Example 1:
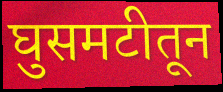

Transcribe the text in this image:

घुसमटीतून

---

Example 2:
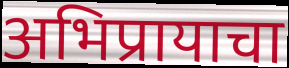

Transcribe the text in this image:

अभिप्रायाचा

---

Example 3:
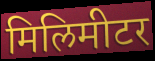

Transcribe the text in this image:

मिलिमीटर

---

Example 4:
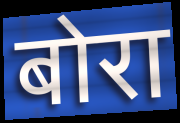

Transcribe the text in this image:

बोरा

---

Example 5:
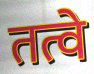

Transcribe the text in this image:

तत्वे